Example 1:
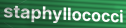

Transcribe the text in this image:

staphyllococci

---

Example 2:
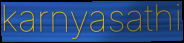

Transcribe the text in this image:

karnyasathi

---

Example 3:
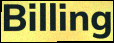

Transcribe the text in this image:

Billing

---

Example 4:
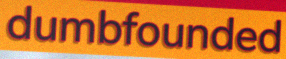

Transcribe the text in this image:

dumbfounded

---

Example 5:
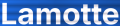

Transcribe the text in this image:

Lamotte